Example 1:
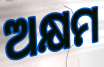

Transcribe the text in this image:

ଅକ୍ଷମ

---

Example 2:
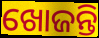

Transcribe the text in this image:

ଖୋଜନ୍ତି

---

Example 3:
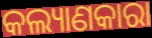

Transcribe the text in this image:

କଲ୍ୟାଣକାରା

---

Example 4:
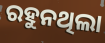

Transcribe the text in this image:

ରହୁନଥିଲା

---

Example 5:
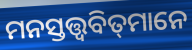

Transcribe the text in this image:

ମନସ୍ତତ୍ତ୍ୱବିତ୍‌ମାନେ